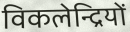
विकलेन्द्रियों